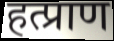
हत्प्राण